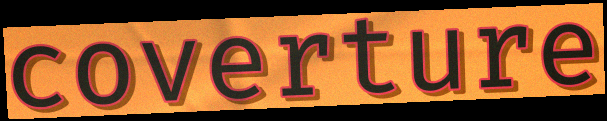
coverture